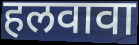
हलवावा